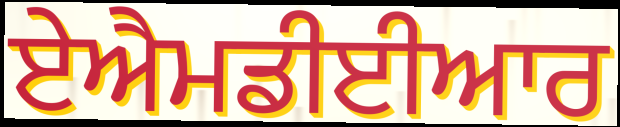
ਏਐਮਡੀਈਆਰ